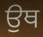
ਉਥ